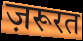
ज़रूरत